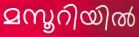
മസൂറിയിൽ